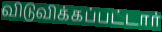
விடுவிக்கப்பட்டார்